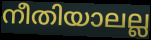
നീതിയാലല്ല